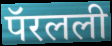
पॅरलली